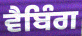
ਵੈਬਿੰਗ